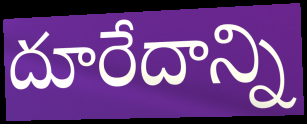
దూరేదాన్ని